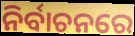
ନିର୍ବାଚନରେ